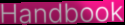
Handbook